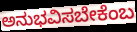
ಅನುಭವಿಸಬೇಕೆಂಬ